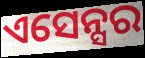
ଏସେନ୍ସର